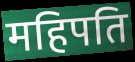
महिपति